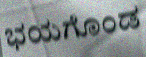
ಭಯಗೊಂಡ